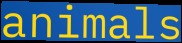
animals